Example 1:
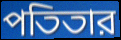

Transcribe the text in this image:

পতিতার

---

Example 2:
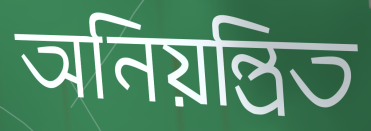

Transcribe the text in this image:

অনিয়ন্ত্রিত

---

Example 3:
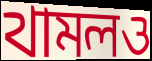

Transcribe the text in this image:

থামলও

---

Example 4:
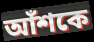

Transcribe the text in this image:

আঁশকে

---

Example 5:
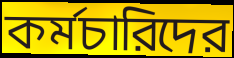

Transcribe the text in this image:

কর্মচারিদের